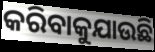
କରିବାକୁଯାଉଛି